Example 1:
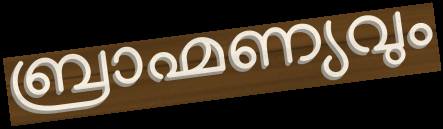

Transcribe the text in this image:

ബ്രാഹ്മണ്യവും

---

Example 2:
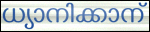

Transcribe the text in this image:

ധ്യാനിക്കാന്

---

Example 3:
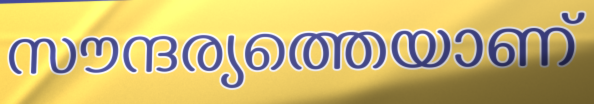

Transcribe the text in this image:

സൗന്ദര്യത്തെയാണ്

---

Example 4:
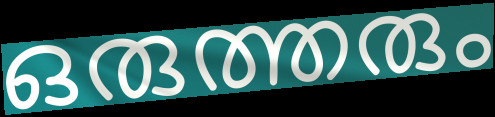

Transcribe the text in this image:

ഒരുത്തരും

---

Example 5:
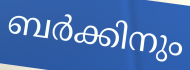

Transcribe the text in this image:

ബർക്കിനും